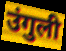
उंगुली